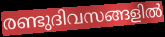
രണ്ടുദിവസങ്ങളിൽ